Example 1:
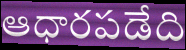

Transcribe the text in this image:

ఆధారపడేది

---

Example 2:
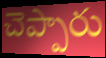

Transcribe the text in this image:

చెప్పారు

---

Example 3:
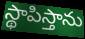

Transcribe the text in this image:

స్థాపిస్తాను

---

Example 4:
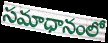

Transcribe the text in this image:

సమాధానంలో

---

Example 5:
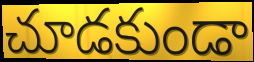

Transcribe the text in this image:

చూడకుండా